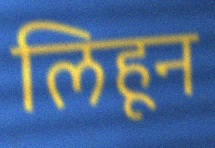
लिहून